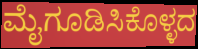
ಮೈಗೂಡಿಸಿಕೊಳ್ಳದ